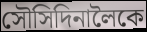
সৌসিদিনালৈকে